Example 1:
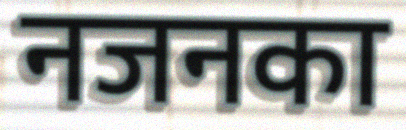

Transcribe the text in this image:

नजनका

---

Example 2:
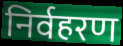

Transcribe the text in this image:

निर्वहरण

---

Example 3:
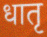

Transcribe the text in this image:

धातृ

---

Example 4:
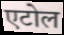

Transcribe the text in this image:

एटोल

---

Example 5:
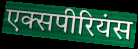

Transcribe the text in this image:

एक्‍सपीरियंस